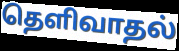
தெளிவாதல்